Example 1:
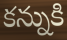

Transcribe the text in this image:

కన్నుకి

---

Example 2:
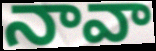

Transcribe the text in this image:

నావా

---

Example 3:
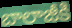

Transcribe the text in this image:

బాలాజీకి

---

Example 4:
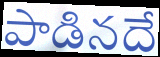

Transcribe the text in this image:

పాడినదే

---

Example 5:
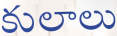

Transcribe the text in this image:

కులాలు